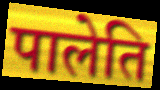
पालेति